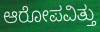
ಆರೋಪವಿತ್ತು